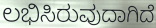
ಲಭಿಸಿರುವುದಾಗಿದೆ